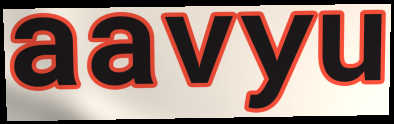
aavyu